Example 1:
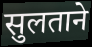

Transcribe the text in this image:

सुलताने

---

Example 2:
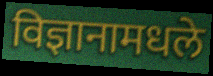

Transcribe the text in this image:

विज्ञानामधले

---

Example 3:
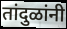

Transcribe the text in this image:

तांदुळांनी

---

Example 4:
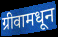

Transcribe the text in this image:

ग्रीवामधून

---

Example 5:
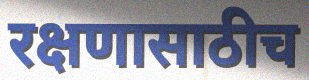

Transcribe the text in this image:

रक्षणासाठीच